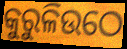
କୁରୁଳିଉଠେ